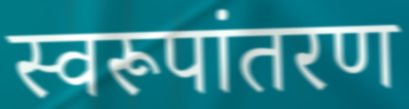
स्वरूपांतरण